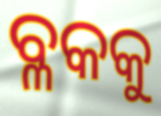
ବ୍ଳକକୁ